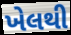
ખેલથી